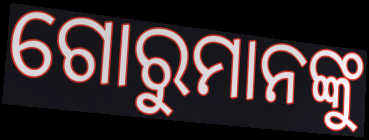
ଗୋରୁମାନଙ୍କୁ